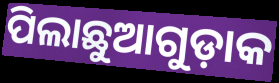
ପିଲାଛୁଆଗୁଡ଼ାକ